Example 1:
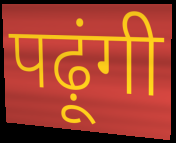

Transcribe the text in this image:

पढ़ूंगी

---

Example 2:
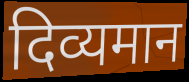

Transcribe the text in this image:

दिव्यमान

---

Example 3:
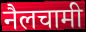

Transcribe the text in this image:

नैलचामी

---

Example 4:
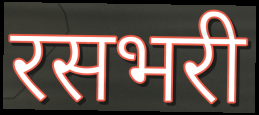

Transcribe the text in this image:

रसभरी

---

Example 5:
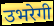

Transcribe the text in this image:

उभरेगी